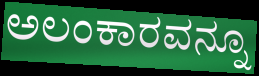
ಅಲಂಕಾರವನ್ನೂ